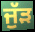
ਜੁੱੜ